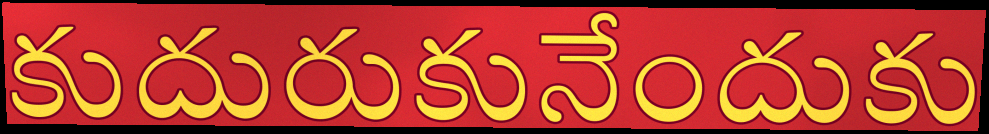
కుదురుకునేందుకు